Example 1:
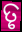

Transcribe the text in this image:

ତୃ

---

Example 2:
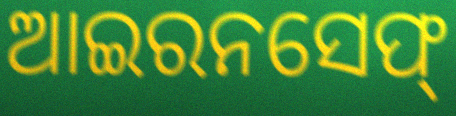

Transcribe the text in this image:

ଆଇରନସେଫ୍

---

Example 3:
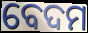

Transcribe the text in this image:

ବେଦମ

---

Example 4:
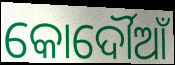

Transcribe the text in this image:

କୋର୍ଦୌଆଁ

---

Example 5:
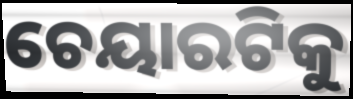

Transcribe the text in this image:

ଚେୟାରଟିକୁ